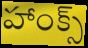
హాంక్స్